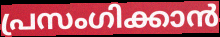
പ്രസംഗിക്കാൻ